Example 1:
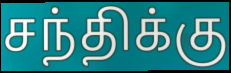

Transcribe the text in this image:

சந்திக்கு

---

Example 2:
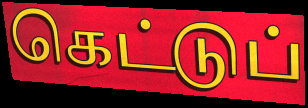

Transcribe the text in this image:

கெட்டுப்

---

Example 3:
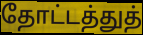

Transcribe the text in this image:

தோட்டத்துத்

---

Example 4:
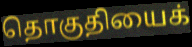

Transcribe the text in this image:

தொகுதியைக்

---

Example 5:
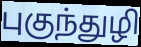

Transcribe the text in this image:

புகுந்துழி